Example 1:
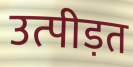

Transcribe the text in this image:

उत्पीड़त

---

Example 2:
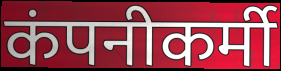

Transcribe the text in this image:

कंपनीकर्मी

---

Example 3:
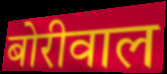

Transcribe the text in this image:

बोरीवाल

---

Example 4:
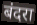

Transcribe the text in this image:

बंदरा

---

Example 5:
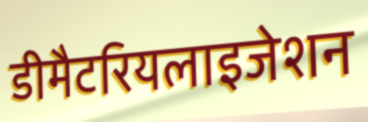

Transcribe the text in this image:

डीमैटरियलाइजेशन